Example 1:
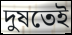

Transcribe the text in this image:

দুষতেই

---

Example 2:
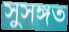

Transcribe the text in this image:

সুসঙ্গত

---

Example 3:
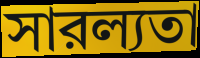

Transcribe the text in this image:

সারল্যতা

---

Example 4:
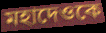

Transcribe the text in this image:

মহাদেওকে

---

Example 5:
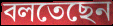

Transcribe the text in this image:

বলতেছেন